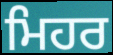
ਮਿਹਰ